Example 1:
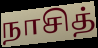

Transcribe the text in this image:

நாசித்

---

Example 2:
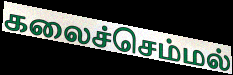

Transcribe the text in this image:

கலைச்செம்மல்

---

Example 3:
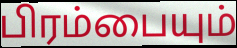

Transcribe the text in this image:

பிரம்பையும்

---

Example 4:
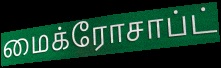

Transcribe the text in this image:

மைக்ரோசாப்ட்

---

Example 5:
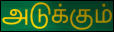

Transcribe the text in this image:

அடுக்கும்